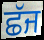
ਛੱਜ